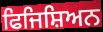
ਫਿਜਿਸ਼ਿਅਨ